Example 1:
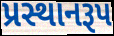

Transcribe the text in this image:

પ્રસ્થાનરૂપ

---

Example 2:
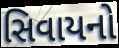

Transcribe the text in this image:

સિવાયનો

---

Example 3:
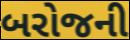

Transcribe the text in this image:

બરોજની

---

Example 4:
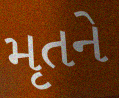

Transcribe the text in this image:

મૃતને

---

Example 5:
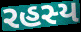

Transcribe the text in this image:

રહસ્ય